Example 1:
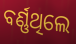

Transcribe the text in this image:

ବର୍ଣ୍ଣଥିଲେ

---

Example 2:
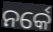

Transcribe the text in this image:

ନର୍କେ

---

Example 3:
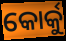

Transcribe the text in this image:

କୋର୍କୁ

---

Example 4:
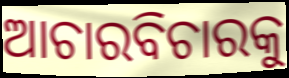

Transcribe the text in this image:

ଆଚାରବିଚାରକୁ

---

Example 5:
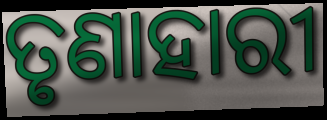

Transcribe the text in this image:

ତୃଣାହାରୀ